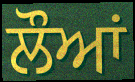
ਲੌਆਂ